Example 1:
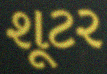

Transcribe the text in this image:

શૂટર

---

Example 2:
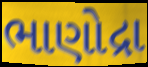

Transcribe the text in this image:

ભાણોદ્રા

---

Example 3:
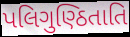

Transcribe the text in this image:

પલિગુણ્ઠિતાતિ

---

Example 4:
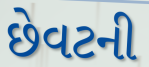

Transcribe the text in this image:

છેવટની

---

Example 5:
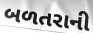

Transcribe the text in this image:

બળતરાની